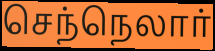
செந்நெலார்